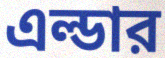
এল্ডার